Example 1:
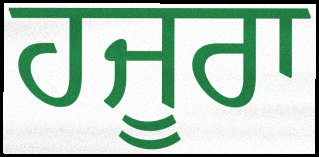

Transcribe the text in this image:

ਹਜੂਰਾ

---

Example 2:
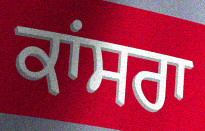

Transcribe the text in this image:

ਕਾਂਸਰਾ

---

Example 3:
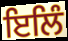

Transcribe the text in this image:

ਇਲਿੰ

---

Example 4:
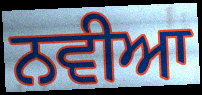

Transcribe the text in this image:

ਨਵੀਆ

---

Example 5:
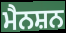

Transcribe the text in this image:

ਮੈਨਸ਼ਨ